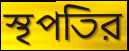
স্থপতির